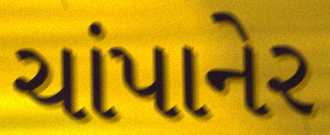
ચાંપાનેર